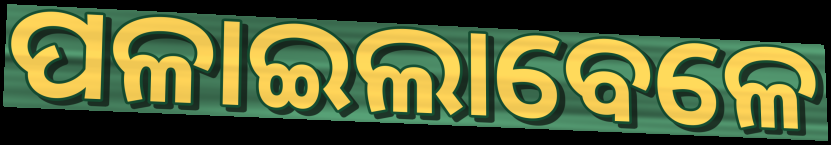
ପଳାଇଲାବେଳେ